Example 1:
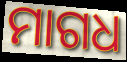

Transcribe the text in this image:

ମାଗଧ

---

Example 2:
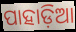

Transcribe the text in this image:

ପାହାଡ଼ିଆ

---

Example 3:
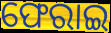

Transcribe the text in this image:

ଫେରାଇ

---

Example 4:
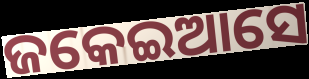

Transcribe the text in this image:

ଜକେଇଆସେ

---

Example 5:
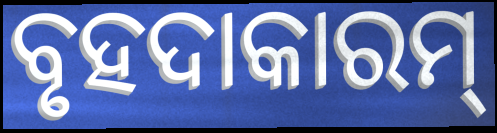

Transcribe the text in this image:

ବୃହଦାକାରମ୍